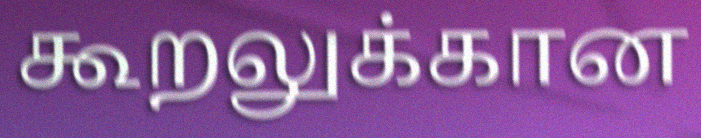
கூறலுக்கான